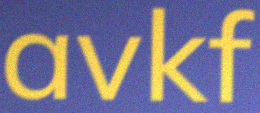
avkf